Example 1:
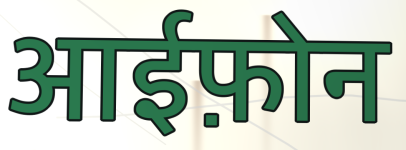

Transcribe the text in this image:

आईफ़ोन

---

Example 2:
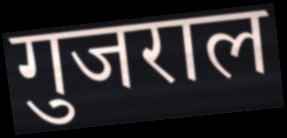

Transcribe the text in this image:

गुजराल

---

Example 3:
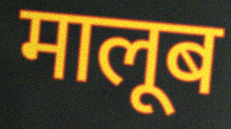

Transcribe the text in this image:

मालूब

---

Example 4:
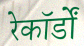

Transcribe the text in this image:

रेकॉर्डों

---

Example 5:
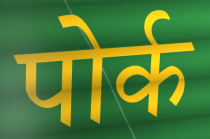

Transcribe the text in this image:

पोर्क